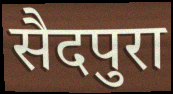
सैदपुरा